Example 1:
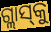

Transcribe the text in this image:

ଗ୍ଲାସ୍‌କୁ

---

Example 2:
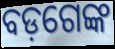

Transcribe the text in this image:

ବଡ଼ଗେଙ୍କ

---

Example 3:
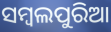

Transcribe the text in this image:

ସମ୍ବଲପୁରିଆ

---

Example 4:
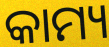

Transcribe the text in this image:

କାମ୍ୟ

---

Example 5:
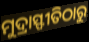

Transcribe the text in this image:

ମୁଦ୍ରାସ୍ଫୀତିଠାରୁ